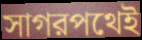
সাগরপথেই